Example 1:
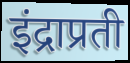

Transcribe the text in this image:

इंद्राप्रती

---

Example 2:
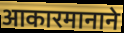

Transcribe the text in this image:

आकारमानाने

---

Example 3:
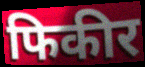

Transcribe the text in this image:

फिकीर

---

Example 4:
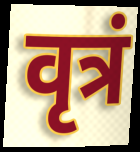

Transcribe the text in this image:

वृत्रं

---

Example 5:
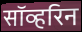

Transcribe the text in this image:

सॉव्हरिन